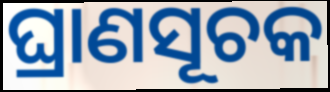
ଘ୍ରାଣସୂଚକ